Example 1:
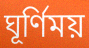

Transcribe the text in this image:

ঘূর্ণিময়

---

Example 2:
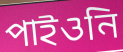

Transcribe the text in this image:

পাইওনি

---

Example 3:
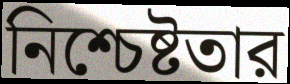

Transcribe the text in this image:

নিশ্চেষ্টতার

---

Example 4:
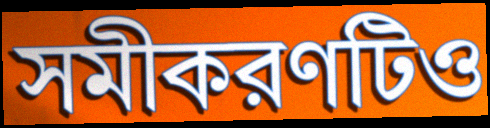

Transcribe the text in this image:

সমীকরণটিও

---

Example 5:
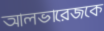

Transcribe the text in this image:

আলভারেজকে